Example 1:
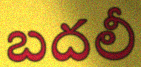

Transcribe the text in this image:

బదలీ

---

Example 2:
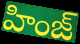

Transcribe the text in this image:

హింజ్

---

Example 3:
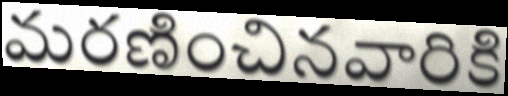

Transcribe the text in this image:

మరణించినవారికి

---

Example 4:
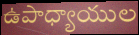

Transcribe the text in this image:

ఉపాధ్యాయుల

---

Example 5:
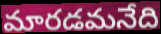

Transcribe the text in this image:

మారడమనేది